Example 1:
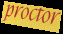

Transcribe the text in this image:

proctor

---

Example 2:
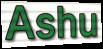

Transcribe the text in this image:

Ashu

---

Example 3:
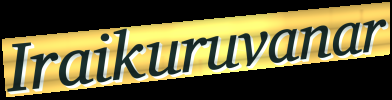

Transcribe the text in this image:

Iraikuruvanar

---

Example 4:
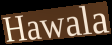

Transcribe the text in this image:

Hawala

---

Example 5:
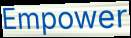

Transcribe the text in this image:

Empower